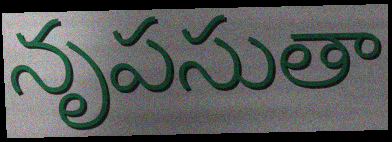
నృపసుతా